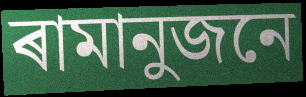
ৰামানুজনে